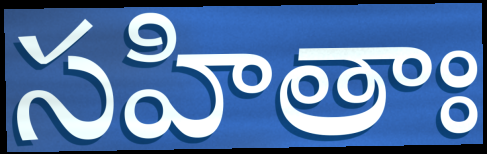
సహితాః